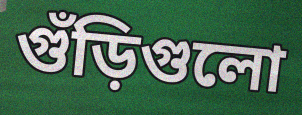
গুঁড়িগুলো